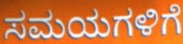
ಸಮಯಗಳಿಗೆ